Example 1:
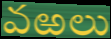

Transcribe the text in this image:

వఱలు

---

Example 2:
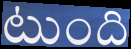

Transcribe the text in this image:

టుంది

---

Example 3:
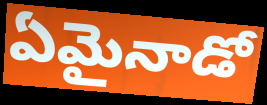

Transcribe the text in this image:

ఏమైనాడో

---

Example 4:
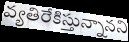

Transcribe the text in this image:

వ్యతిరేకిస్తున్నానని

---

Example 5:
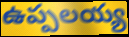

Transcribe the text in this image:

ఉప్పలయ్య